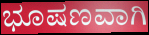
ಭೂಷಣವಾಗಿ